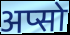
अप्सो